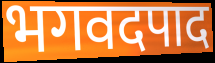
भगवदपाद